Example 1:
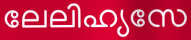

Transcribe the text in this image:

ലേലിഹ്യസേ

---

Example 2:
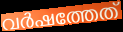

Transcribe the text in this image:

വർഷത്തേത്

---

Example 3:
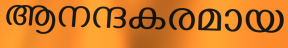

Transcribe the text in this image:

ആനന്ദകരമായ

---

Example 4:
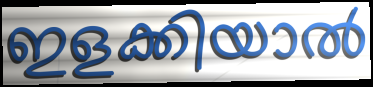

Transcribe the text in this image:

ഇളക്കിയാൽ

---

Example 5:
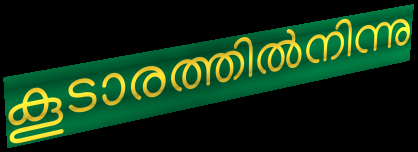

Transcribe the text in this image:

കൂടാരത്തിൽനിന്നു